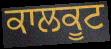
ਕਾਲਕੂਟ